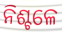
ନିଶ୍ଚଳେ